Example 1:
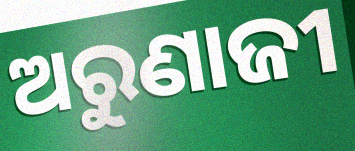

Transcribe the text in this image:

ଅରୁଣାଜୀ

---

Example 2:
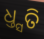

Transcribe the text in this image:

ଧ୍ତ୍ସତି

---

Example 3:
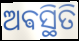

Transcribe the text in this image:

ଅଵସ୍ଥିତି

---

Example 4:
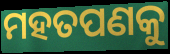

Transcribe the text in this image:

ମହତପଣକୁ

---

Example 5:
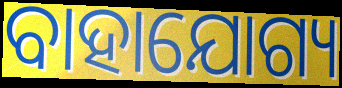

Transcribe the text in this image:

ବାହାଯୋଗ୍ୟ